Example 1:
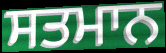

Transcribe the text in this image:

ਸਤਮਾਨ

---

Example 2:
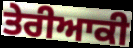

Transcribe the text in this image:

ਤੇਰੀਆਕੀ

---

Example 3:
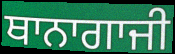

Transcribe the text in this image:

ਥਾਨਾਗਾਜੀ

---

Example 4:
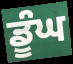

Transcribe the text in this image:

ਡੂੰਘ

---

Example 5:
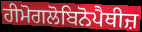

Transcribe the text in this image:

ਹੀਮੋਗਲੋਬਿਨੋਪੈਥੀਜ਼